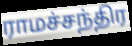
ராமச்சந்திர